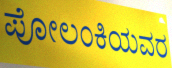
ಪೋಲಂಕಿಯವರ